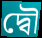
দ্বৌ